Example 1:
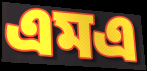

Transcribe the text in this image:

এমএ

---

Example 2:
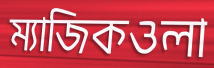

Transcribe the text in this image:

ম্যাজিকওলা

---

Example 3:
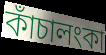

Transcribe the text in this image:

কাঁচালংকা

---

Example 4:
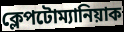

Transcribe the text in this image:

ক্লেপটোম্যানিয়াক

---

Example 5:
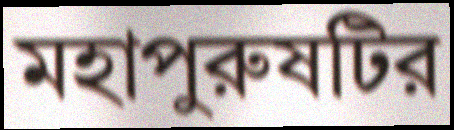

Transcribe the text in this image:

মহাপুরুষটির